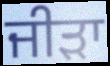
ਜੀੜਾ